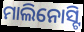
ମାଲିନୋସ୍ଟି